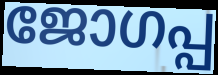
ജോഗപ്പ